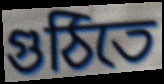
গুঠিতে